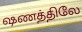
ஷணத்திலே